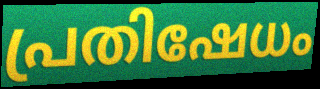
പ്രതിഷേധം